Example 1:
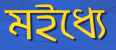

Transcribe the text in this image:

মইধ্যে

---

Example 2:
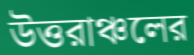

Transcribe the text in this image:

উত্তরাঞ্চলের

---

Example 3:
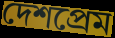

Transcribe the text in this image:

দেশপ্রেম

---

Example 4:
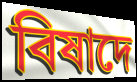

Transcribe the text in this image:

বিষাদে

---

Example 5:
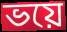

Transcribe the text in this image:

ভয়ে